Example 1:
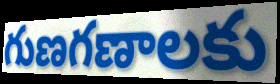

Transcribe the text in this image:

గుణగణాలకు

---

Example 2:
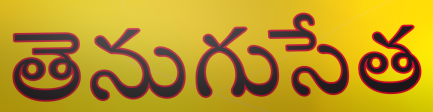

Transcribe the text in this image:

తెనుగుసేత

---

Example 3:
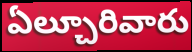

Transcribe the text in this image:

ఏల్చూరివారు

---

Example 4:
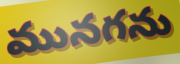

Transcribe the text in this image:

మునగను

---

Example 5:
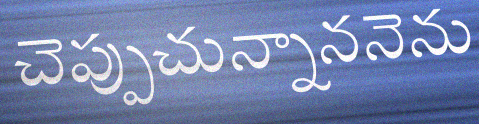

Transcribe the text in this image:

చెప్పుచున్నాననెను